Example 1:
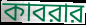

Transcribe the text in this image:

কাবরার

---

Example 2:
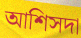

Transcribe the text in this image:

আশিসদা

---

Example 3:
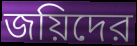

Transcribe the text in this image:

জয়িদের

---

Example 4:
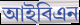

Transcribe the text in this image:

আইবিএন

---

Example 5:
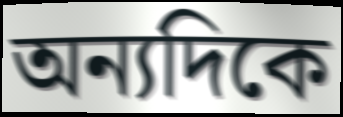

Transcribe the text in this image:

অন্যদিকে